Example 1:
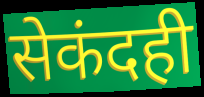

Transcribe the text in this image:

सेकंदही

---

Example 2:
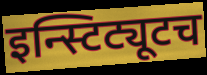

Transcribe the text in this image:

इन्स्टिट्यूटच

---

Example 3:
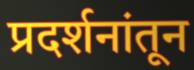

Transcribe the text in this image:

प्रदर्शनांतून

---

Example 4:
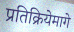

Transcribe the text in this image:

प्रतिक्रियेमागे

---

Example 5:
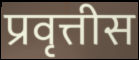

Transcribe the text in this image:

प्रवृत्तीस